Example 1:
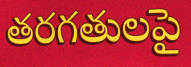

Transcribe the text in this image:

తరగతులపై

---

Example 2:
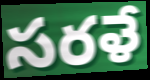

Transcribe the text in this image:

సరళే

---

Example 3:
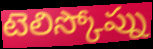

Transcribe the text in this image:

టెలిస్కోప్ను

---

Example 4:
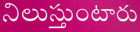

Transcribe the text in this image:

నిలుస్తుంటారు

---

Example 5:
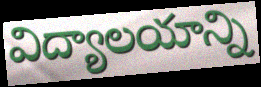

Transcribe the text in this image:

విద్యాలయాన్ని